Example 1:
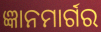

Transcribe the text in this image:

ଜ୍ଞାନମାର୍ଗର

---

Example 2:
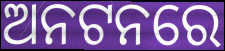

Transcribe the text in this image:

ଅନଟନରେ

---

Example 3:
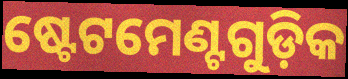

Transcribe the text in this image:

ଷ୍ଟେଟମେଣ୍ଟଗୁଡ଼ିକ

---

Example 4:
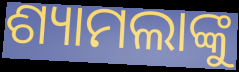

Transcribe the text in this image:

ଶ୍ୟାମଲାଙ୍କୁ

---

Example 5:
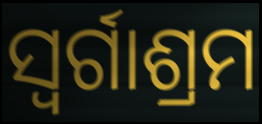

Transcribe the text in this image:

ସ୍ୱର୍ଗାଶ୍ରମ